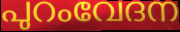
പുറംവേദന